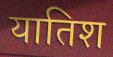
यातिश